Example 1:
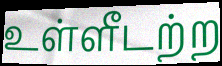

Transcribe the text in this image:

உள்ளீடற்ற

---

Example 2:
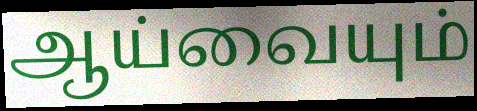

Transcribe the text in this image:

ஆய்வையும்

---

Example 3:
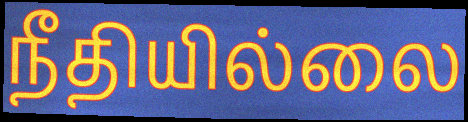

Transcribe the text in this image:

நீதியில்லை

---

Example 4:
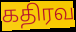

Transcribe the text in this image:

கதிரவ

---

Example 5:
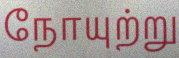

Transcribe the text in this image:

நோயுற்று